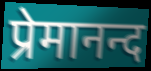
प्रेमानन्द